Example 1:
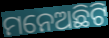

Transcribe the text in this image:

ମନେଅଛିଟି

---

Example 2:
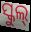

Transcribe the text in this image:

ସ୍କୁଲ୍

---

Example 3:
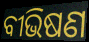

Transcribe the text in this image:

ବୀଭିଷଣ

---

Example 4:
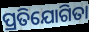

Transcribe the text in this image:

ପ୍ରତିଯୋଗିତା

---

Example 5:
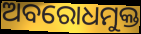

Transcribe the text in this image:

ଅବରୋଧମୁକ୍ତ